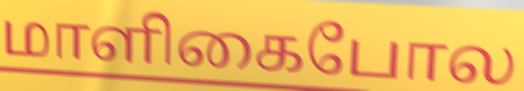
மாளிகைபோல